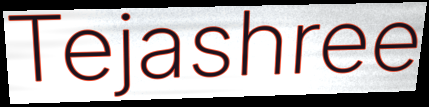
Tejashree